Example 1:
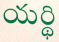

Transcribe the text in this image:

యర్థి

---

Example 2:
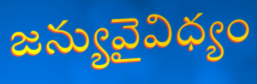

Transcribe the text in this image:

జన్యువైవిధ్యం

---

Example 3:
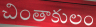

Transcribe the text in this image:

చింతాకులం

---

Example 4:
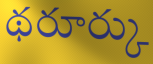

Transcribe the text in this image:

థరూర్కు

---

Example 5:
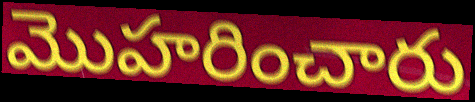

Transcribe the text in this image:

మొహరించారు